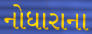
નોધારાના